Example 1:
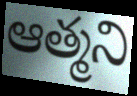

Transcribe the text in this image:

ఆత్మని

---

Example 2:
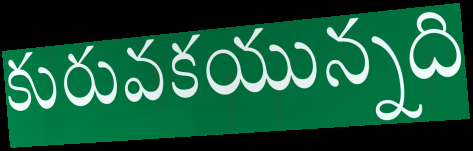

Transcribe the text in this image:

కురువకయున్నది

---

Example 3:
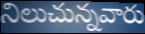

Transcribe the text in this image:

నిలుచున్నవారు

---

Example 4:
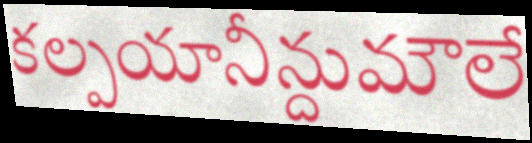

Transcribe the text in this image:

కల్పయానీన్దుమౌలే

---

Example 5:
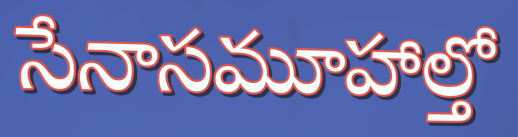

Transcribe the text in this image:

సేనాసమూహాల్తో